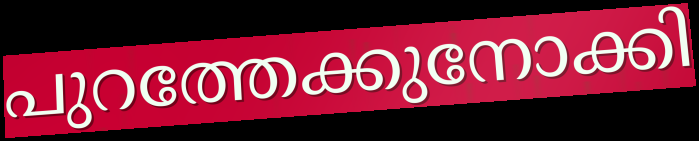
പുറത്തേക്കുനോക്കി